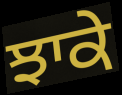
ਝਾਕੇ